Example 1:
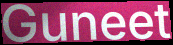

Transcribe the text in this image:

Guneet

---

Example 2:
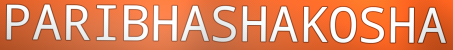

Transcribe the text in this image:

PARIBHASHAKOSHA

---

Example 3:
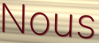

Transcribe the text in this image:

Nous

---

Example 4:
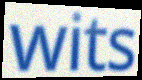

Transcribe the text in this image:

wits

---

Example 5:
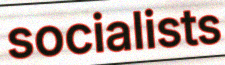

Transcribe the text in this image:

socialists